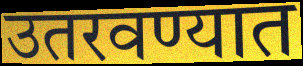
उतरवण्यात